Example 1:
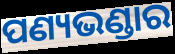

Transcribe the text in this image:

ପଣ୍ୟଭଣ୍ଡାର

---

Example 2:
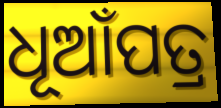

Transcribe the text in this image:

ଧୂଆଁପତ୍ର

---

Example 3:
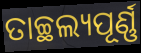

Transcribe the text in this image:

ତାଚ୍ଛଲ୍ୟପୂର୍ଣ୍ଣ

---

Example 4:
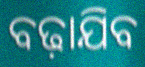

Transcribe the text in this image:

ବଢ଼ାଯିବ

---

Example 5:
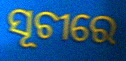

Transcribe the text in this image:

ସୂଚୀରେ